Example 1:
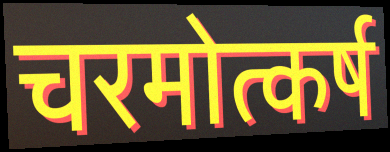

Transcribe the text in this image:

चरमोत्कर्ष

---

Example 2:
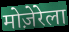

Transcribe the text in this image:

मोज़ेरेला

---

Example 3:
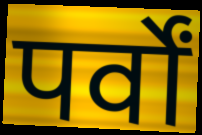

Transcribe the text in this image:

पर्वों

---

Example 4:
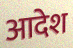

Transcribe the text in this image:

आदेश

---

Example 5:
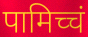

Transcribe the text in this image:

पामिच्चं